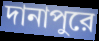
দানাপুরে